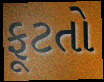
ફૂટતો